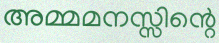
അമ്മമനസ്സിന്റെ